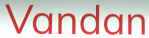
Vandan